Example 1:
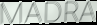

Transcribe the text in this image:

MADRA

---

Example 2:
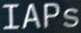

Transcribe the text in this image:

IAPs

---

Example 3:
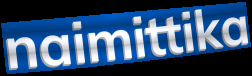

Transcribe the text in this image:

naimittika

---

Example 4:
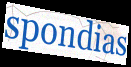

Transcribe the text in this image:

spondias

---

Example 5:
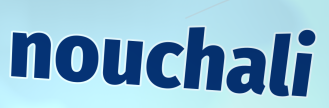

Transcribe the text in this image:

nouchali